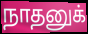
நாதனுக்